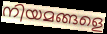
നിയമങ്ങളെ